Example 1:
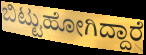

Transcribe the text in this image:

ಬಿಟ್ಟುಹೋಗಿದ್ದಾರೆ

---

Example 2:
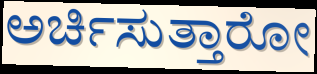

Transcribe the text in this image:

ಅರ್ಚಿಸುತ್ತಾರೋ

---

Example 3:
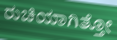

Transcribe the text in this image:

ರುಚಿಯಾಗಿತ್ತೋ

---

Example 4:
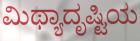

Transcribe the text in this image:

ಮಿಥ್ಯಾದೃಷ್ಟಿಯ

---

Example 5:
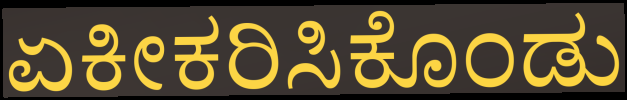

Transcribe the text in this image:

ಏಕೀಕರಿಸಿಕೊಂಡು